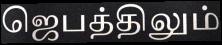
ஜெபத்திலும்